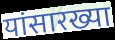
यांसारख्या